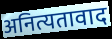
अनित्यतावाद